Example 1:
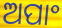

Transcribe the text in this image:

ଅପାଂ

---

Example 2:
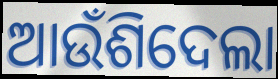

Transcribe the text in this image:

ଆଉଁଶିଦେଲା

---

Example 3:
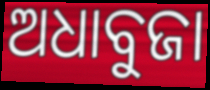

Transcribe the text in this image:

ଅଧାବୁଜା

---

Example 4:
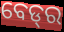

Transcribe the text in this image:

ବେଡ୍‍ର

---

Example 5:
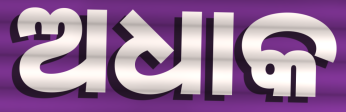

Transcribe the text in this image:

ଅଧାକ